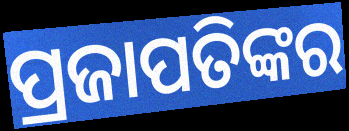
ପ୍ରଜାପତିଙ୍କର